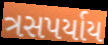
ત્રસપર્યાય